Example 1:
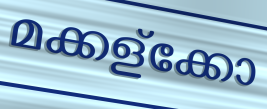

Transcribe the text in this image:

മക്കള്ക്കോ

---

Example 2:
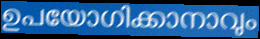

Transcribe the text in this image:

ഉപയോഗിക്കാനാവും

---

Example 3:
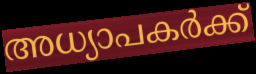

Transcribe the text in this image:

അധ്യാപകർക്ക്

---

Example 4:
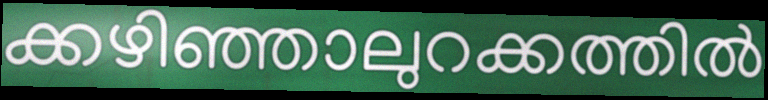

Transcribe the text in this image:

ക്കഴിഞ്ഞാലുറക്കത്തിൽ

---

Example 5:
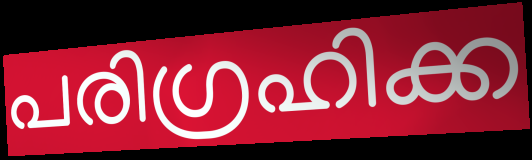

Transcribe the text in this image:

പരിഗ്രഹിക്ക